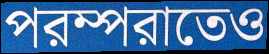
পরম্পরাতেও